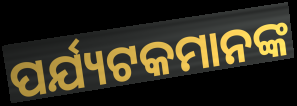
ପର୍ଯ୍ୟଟକମାନଙ୍କ